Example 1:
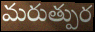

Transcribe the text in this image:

మరుత్పుర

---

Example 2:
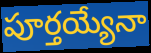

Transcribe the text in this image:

పూర్తయ్యేనా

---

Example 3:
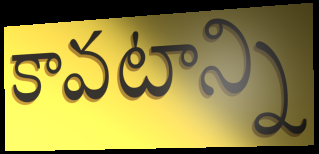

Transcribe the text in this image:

కావటాన్ని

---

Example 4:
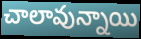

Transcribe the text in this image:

చాలావున్నాయి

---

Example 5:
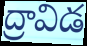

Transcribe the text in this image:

ద్రావిడ